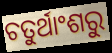
ଚତୁର୍ଥାଂଶରୁ